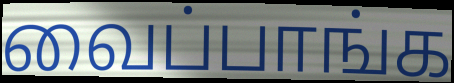
வைப்பாங்க